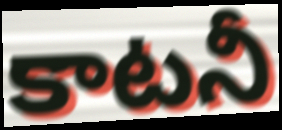
కాటనీ